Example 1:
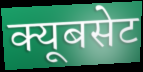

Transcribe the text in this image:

क्यूबसेट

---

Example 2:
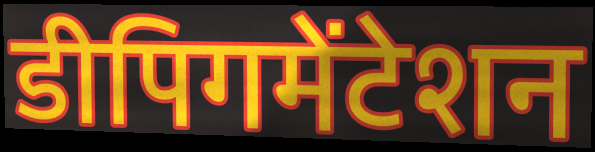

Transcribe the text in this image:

डीपिगमेंटेशन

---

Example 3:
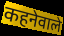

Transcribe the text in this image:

कहनेवाले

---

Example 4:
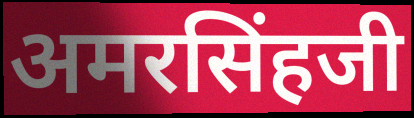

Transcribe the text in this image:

अमरसिंहजी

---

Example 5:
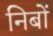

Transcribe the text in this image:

निबों